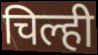
चिल्ही